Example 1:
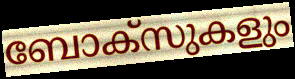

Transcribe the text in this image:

ബോക്സുകളും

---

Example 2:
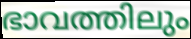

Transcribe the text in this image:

ഭാവത്തിലും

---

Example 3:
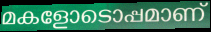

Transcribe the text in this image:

മകളോടൊപ്പമാണ്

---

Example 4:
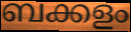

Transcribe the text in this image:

ബക്കളം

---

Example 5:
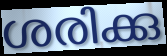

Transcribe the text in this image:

ശരിക്കു